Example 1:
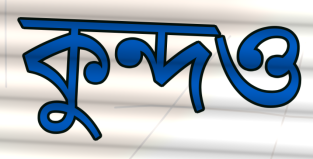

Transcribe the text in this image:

কুন্দও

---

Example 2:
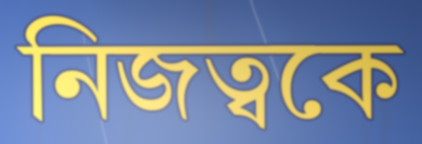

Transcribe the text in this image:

নিজত্বকে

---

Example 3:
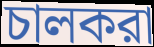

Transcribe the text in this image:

চালকরা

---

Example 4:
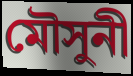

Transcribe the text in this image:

মৌসুনী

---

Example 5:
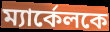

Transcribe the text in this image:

ম্যার্কেলকে